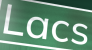
Lacs